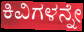
ಕಿವಿಗಳನ್ನೇ